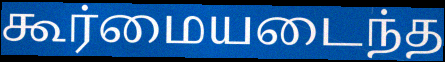
கூர்மையடைந்த